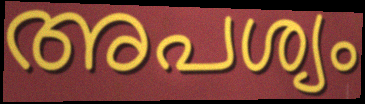
അപശ്യം